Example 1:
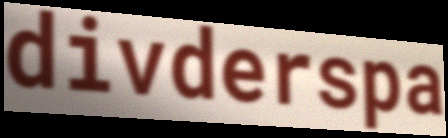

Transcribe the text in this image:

divderspa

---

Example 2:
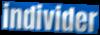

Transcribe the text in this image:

individer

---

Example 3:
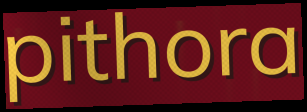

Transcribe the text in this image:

pithora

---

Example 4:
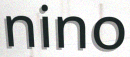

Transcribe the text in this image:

nino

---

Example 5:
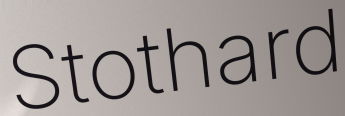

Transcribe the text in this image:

Stothard